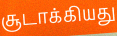
சூடாக்கியது